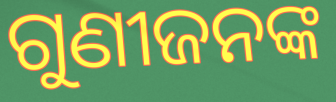
ଗୁଣୀଜନଙ୍କ